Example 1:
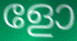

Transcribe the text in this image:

ളോ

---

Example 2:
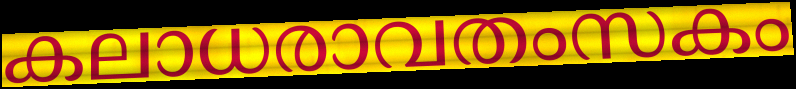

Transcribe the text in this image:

കലാധരാവതംസകം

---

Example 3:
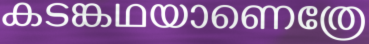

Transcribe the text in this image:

കടങ്കഥയാണെത്രേ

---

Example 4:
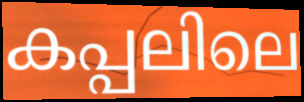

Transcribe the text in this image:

കപ്പലിലെ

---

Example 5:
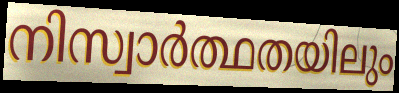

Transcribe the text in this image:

നിസ്വാർത്ഥതയിലും